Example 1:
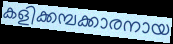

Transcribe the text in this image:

കളിക്കമ്പക്കാരനായ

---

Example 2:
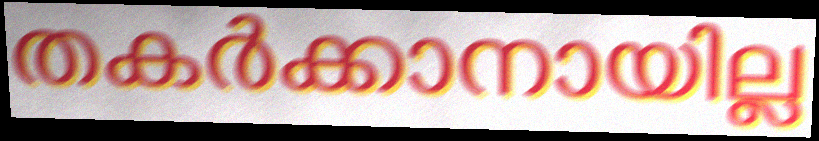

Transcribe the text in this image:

തകർക്കാനായില്ല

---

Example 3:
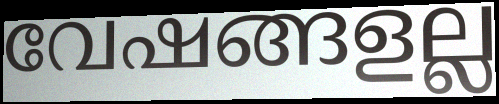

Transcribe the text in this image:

വേഷങ്ങളല്ല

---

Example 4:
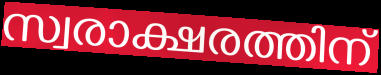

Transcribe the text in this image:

സ്വരാക്ഷരത്തിന്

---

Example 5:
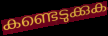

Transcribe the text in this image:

കണ്ടെടുക്കുക